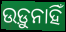
ଉଡ଼ୁନାହିଁ